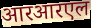
आरआरएल